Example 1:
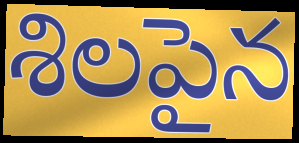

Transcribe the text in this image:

శిలపైన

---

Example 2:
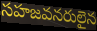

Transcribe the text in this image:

సహజవనరులైన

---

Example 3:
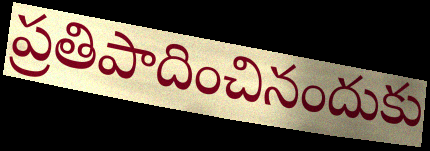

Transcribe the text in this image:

ప్రతిపాదించినందుకు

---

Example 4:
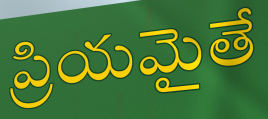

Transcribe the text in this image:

ప్రియమైతే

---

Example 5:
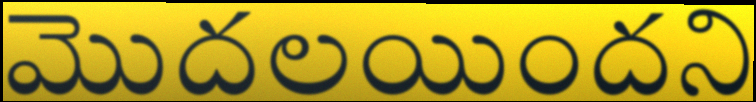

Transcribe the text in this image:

మొదలయిందని